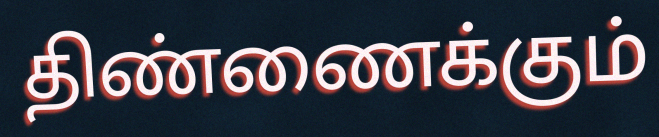
திண்ணைக்கும்